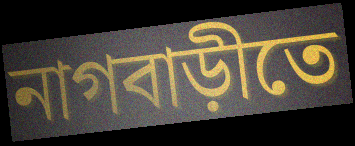
নাগবাড়ীতে